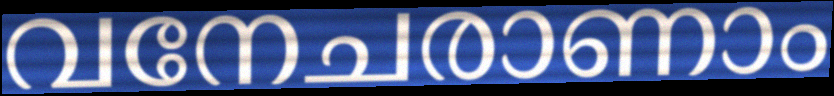
വനേചരാണാം